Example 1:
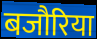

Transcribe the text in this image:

बजौरिया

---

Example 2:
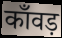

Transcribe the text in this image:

काँवड़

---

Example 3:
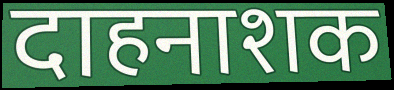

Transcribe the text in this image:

दाहनाशक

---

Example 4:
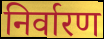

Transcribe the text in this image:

निर्वारण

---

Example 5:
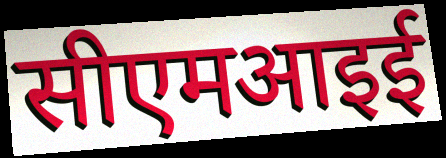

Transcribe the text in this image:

सीएमआइई